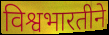
विश्वभारतीने